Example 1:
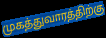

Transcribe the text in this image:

முகத்துவாரத்திற்கு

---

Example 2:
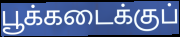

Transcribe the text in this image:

பூக்கடைக்குப்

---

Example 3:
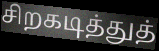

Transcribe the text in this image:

சிறகடித்துத்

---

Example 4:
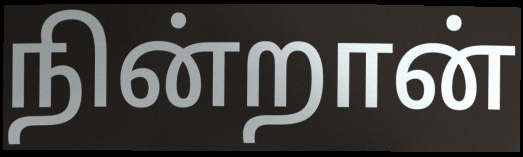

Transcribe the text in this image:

நின்றான்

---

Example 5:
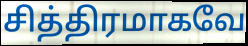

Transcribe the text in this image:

சித்திரமாகவே